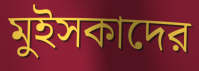
মুইসকাদের